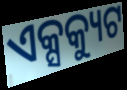
ଏକ୍ସକ୍ୟୁଟ